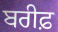
ਬਰੀਫ਼